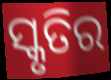
ସ୍କୃତିର